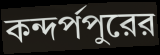
কন্দর্পপুরের